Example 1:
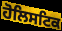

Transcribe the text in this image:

ਹੋਲਿਸਟਿਕ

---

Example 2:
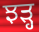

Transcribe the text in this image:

ਝੜ੍ਹ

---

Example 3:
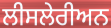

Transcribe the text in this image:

ਲੀਸਲੇਰੀਅਨ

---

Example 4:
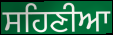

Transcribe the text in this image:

ਸਹਿਣੀਆ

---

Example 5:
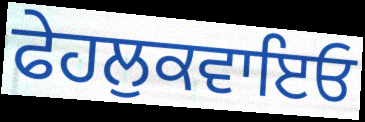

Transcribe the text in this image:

ਫੇਹਲੁਕਵਾਇਓ